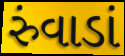
રુંવાડાં